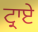
ਟ੍ਰਾਏ